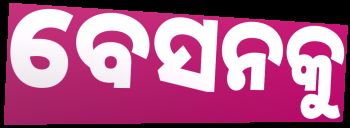
ବେସନକୁ